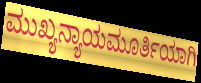
ಮುಖ್ಯನ್ಯಾಯಮೂರ್ತಿಯಾಗಿ